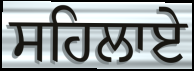
ਸਹਿਲਾਏ